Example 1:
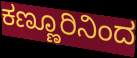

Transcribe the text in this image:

ಕಣ್ಣೂರಿನಿಂದ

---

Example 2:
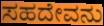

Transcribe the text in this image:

ಸಹದೇವನು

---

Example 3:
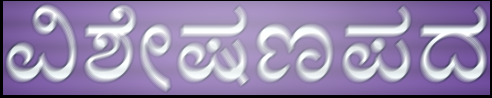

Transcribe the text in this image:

ವಿಶೇಷಣಪದ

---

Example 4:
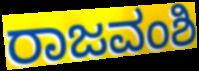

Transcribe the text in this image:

ರಾಜವಂಶಿ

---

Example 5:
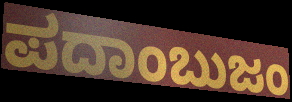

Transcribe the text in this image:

ಪದಾಂಬುಜಂ